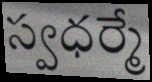
స్వధర్మే